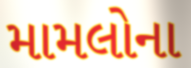
મામલોના